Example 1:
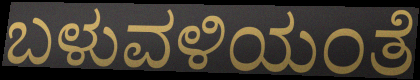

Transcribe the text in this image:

ಬಳುವಳಿಯಂತೆ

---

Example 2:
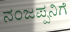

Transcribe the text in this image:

ನಂಜಪ್ಪನಿಗೆ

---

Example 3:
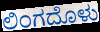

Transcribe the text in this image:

ಲಿಂಗದೊಳು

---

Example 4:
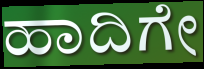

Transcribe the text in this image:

ಹಾದಿಗೇ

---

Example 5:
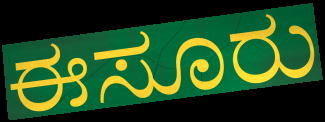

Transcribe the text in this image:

ಈಸೂರು